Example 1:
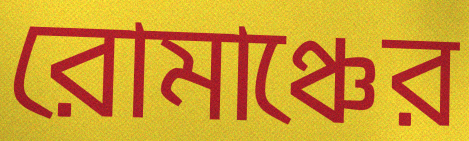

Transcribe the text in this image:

রোমাঞ্চের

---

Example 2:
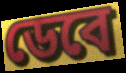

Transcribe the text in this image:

ডেবে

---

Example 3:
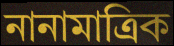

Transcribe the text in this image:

নানামাত্রিক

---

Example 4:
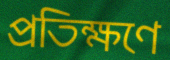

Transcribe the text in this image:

প্রতিক্ষণে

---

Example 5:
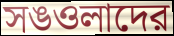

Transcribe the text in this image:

সঙওলাদের